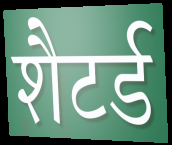
शैटर्ड